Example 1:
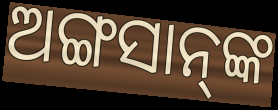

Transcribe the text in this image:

ଅଙ୍ଗସାନ୍‌ଙ୍କ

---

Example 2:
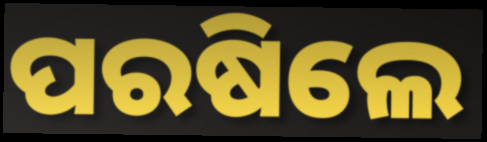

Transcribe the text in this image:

ପରଷିଲେ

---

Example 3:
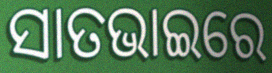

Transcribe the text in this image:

ସାତଭାଇରେ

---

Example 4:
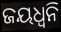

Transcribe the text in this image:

ଜୟଧ୍ୱନି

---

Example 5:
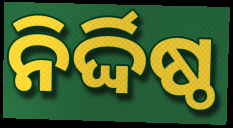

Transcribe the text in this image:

ନିର୍ଦ୍ଦିଷ୍ଠ